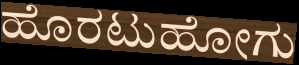
ಹೊರಟುಹೋಗು